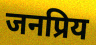
जनप्रिय